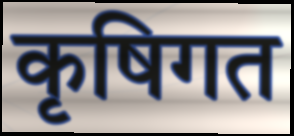
कृषिगत